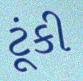
ટૂંકી